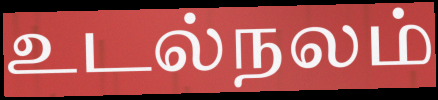
உடல்நலம்